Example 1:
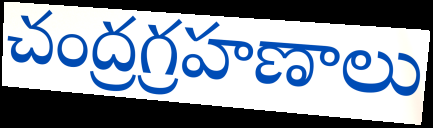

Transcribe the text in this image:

చంద్రగ్రహణాలు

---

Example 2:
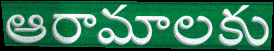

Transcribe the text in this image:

ఆరామాలకు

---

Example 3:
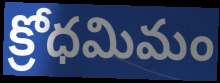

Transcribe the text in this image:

క్రోధమిమం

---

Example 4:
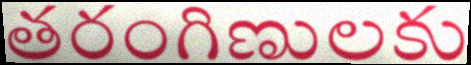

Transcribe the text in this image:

తరంగిణులకు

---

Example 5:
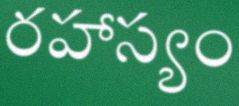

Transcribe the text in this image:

రహాస్యం